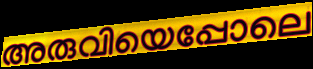
അരുവിയെപ്പോലെ